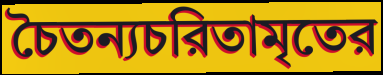
চৈতন্যচরিতামৃতের